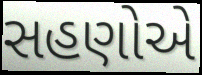
સહણોએ